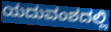
ಯದುವಂಶದಲ್ಲಿ